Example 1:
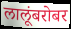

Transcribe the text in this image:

लालूंबरोबर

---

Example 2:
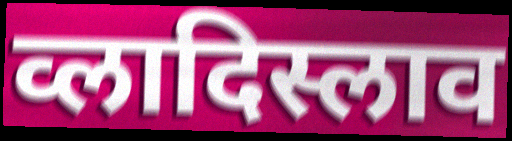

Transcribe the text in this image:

व्लादिस्लाव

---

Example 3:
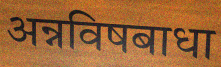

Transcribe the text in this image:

अन्नविषबाधा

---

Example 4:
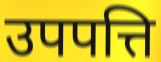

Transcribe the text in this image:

उपपत्ति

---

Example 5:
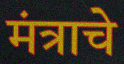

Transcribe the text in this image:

मंत्राचे